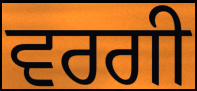
ਵਰਗੀ